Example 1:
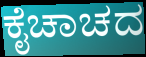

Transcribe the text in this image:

ಕೈಚಾಚದ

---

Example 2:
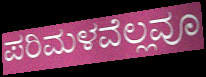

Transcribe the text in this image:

ಪರಿಮಳವೆಲ್ಲವೂ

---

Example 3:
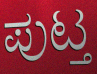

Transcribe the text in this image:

ಪುಟ್ತ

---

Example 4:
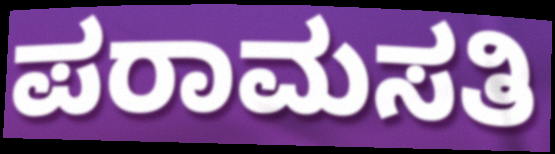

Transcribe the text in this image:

ಪರಾಮಸತಿ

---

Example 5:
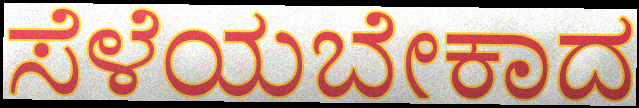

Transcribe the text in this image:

ಸೆಳೆಯಬೇಕಾದ